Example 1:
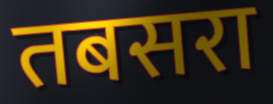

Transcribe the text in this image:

तबसरा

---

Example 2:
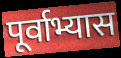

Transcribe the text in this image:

पूर्वाभ्यास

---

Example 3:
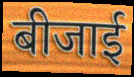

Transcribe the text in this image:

बीजाई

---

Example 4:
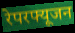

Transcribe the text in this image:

रेपरफ्यूजन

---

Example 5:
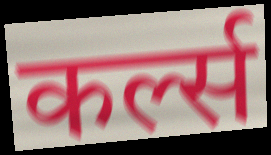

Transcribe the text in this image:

कर्ल्स